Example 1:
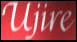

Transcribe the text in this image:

Ujire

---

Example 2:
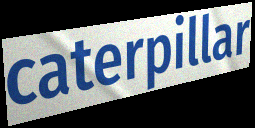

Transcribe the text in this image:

caterpillar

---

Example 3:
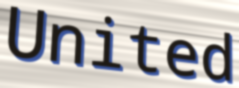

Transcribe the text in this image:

United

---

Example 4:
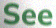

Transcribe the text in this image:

See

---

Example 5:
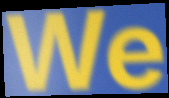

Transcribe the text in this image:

We